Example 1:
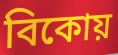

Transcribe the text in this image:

বিকোয়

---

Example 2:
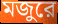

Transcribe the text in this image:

মজুরে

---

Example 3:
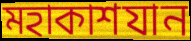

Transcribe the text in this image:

মহাকাশযান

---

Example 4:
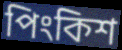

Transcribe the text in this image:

পিংকিশ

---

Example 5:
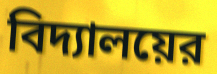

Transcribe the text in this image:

বিদ্যালয়ের